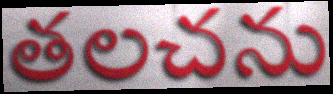
తలచను